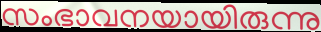
സംഭാവനയായിരുന്നു